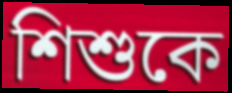
শিশুকে